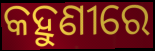
କହୁଣୀରେ